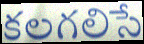
కలగలిసే